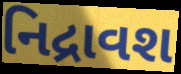
નિદ્રાવશ